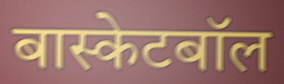
बास्केटबॉल